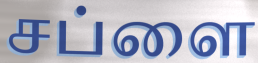
சப்ளை